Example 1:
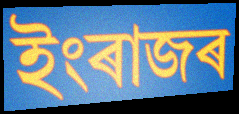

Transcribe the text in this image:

ইংৰাজৰ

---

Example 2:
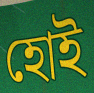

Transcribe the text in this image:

হোই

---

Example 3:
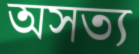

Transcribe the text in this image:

অসত্য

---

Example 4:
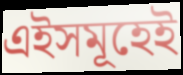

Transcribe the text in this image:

এইসমূহেই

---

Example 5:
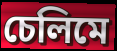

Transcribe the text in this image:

চেলিমে